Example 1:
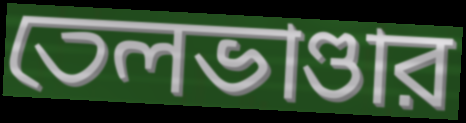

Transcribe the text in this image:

তেলভাণ্ডার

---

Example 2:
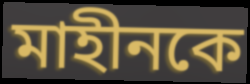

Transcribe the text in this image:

মাহীনকে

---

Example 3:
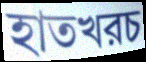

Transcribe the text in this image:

হাতখরচ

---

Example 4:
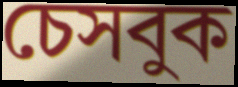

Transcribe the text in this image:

চেসবুক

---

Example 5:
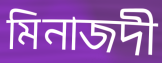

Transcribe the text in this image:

মিনাজদী